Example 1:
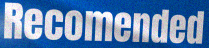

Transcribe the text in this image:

Recomended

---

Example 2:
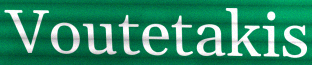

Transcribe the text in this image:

Voutetakis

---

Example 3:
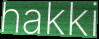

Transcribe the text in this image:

hakki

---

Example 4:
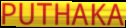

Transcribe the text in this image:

PUTHAKA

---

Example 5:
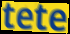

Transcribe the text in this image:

tete